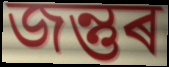
জন্তুৰ